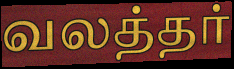
வலத்தர்